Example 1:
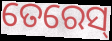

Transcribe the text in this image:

ତେରେସ୍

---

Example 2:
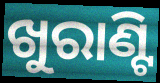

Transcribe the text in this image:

ଖୁରାଣ୍ଟି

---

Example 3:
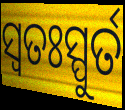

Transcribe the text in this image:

ସ୍ୱତଃସ୍ପୁର୍ତ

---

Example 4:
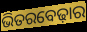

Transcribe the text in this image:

ଭିତରବେଢ଼ାର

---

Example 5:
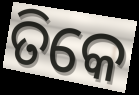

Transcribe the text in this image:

ତିକେ